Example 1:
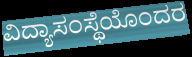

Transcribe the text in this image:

ವಿದ್ಯಾಸಂಸ್ಥೆಯೊಂದರ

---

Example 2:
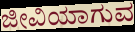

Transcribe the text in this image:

ಜೀವಿಯಾಗುವ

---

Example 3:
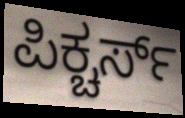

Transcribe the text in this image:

ಪಿಕ್ಚರ್ಸ್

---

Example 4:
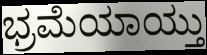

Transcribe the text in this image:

ಭ್ರಮೆಯಾಯ್ತು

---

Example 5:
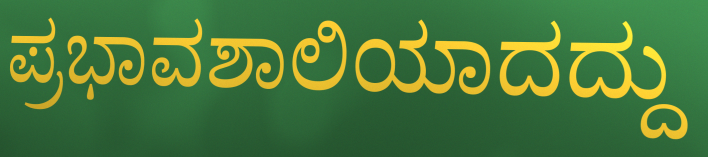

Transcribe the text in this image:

ಪ್ರಭಾವಶಾಲಿಯಾದದ್ದು